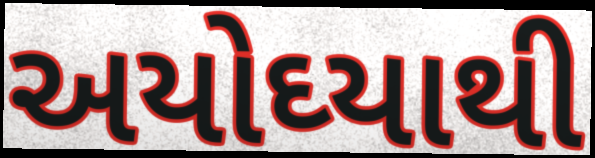
અયોઘ્યાથી